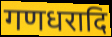
गणधरादि